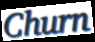
Churn